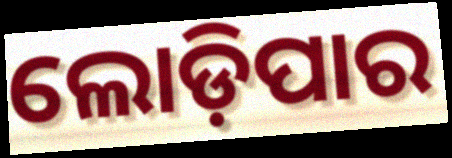
ଲୋଡ଼ିପାର